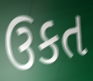
ઉકત